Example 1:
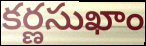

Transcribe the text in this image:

కర్ణసుఖాం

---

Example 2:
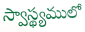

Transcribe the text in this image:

స్వాస్థ్యములో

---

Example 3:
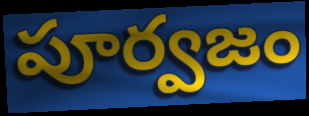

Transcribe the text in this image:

పూర్వజం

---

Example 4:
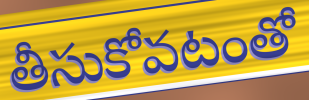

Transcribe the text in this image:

తీసుకోవటంతో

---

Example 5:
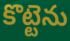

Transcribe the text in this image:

కొట్టెను